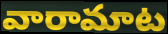
వారామాట